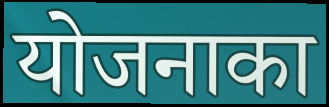
योजनाका